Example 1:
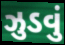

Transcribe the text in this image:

ઝુડવું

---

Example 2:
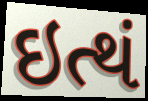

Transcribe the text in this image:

ઇત્થં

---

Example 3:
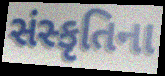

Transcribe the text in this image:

સંસ્કૃતિના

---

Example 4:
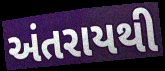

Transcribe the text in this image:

અંતરાયથી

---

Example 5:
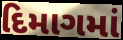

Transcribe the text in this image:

દિમાગમાં